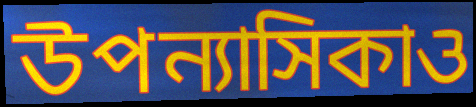
উপন্যাসিকাও